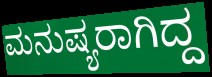
ಮನುಷ್ಯರಾಗಿದ್ದ